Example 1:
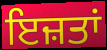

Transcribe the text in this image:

ਇਜ਼ਤਾਂ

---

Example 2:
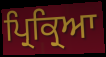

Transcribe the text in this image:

ਪ੍ਰਿਕ੍ਰਿਆ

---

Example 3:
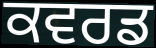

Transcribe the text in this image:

ਕਵਰਡ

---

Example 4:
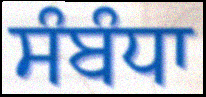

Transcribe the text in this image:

ਸੰਬੰਧਾ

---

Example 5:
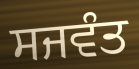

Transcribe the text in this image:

ਸਜਵੰਤ